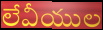
లేవీయుల